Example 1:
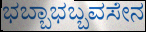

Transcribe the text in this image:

ಭಬ್ಬಾಭಬ್ಬವಸೇನ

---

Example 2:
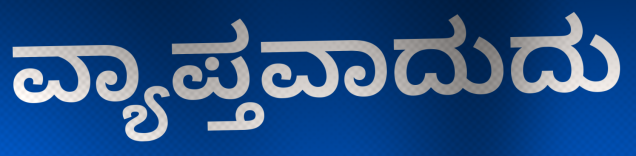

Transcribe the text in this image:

ವ್ಯಾಪ್ತವಾದುದು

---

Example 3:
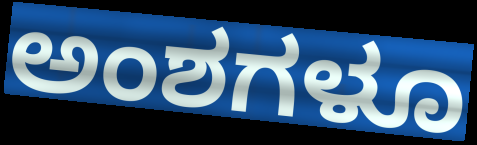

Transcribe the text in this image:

ಅಂಶಗಳೂ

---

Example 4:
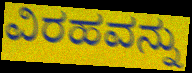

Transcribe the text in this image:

ವಿರಹವನ್ನು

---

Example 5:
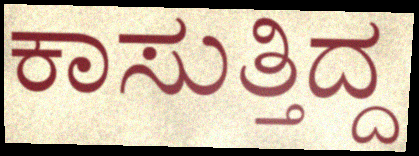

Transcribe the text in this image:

ಕಾಸುತ್ತಿದ್ದ